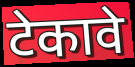
टेकावे